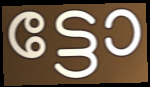
ട്ടോ